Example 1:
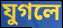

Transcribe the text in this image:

যুগলে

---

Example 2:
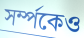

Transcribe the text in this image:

সৰ্ম্পকেও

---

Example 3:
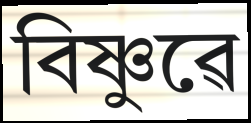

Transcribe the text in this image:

বিষ্ণুৱে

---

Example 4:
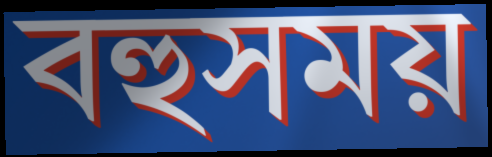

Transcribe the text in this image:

বহুসময়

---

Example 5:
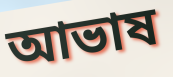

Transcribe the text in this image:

আভাষ